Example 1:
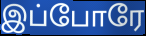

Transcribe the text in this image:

இப்போரே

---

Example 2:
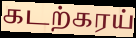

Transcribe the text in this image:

கடற்கரய்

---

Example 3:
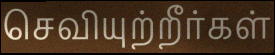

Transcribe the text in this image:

செவியுற்றீர்கள்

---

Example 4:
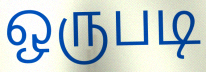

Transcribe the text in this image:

ஒருபடி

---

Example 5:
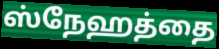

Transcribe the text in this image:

ஸ்நேஹத்தை